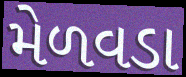
મેળવડા